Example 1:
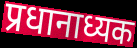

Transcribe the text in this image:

प्रधानाध्यक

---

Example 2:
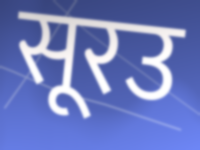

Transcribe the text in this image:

सूरउ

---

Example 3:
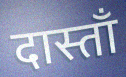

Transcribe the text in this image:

दास्ताँ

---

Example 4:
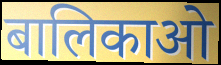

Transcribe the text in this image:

बालिकाओ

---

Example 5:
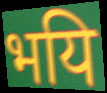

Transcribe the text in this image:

भयि